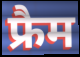
फ्रैम